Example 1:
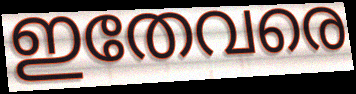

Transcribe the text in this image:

ഇതേവരെ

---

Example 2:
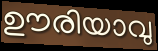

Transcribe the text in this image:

ഊരിയാവു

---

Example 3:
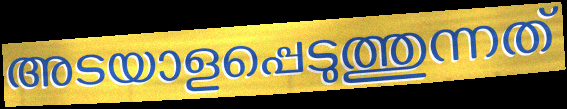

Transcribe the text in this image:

അടയാളപ്പെടുത്തുന്നത്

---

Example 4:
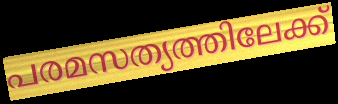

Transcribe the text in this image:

പരമസത്യത്തിലേക്ക്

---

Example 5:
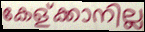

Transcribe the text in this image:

കേള്ക്കാനില്ല